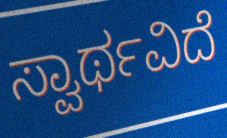
ಸ್ವಾರ್ಥವಿದೆ